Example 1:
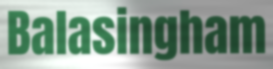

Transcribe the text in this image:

Balasingham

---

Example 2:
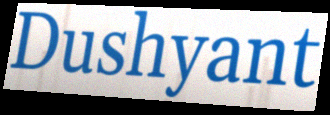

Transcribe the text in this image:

Dushyant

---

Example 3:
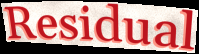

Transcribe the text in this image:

Residual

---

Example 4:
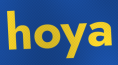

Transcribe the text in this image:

hoya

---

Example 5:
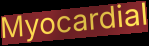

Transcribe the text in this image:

Myocardial